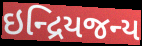
ઇન્દ્રિયજન્ય